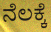
ನೆಲಕ್ಕೆ